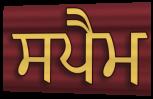
ਸਪੈਮ